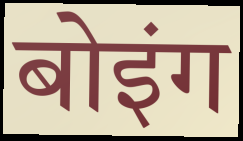
बोइंग